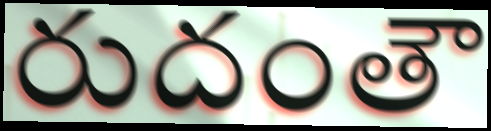
రుదంతౌ